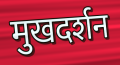
मुखदर्शन